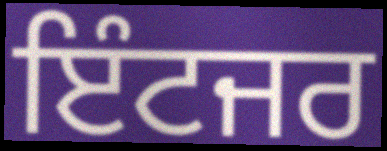
ਇੰਟਜਰ